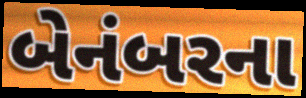
બેનંબરના